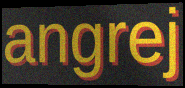
angrej